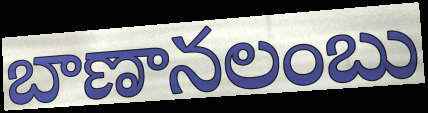
బాణానలంబు